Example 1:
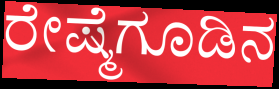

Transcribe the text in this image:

ರೇಷ್ಮೆಗೂಡಿನ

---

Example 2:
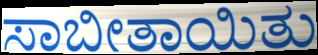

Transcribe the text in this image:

ಸಾಬೀತಾಯಿತು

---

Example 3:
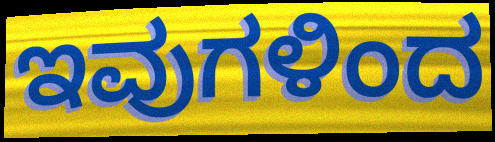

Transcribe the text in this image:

ಇವುಗಳಿಂದ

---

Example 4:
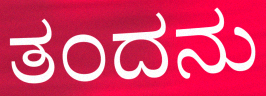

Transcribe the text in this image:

ತಂದನು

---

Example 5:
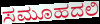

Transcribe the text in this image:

ಸಮೂಹದಲಿ